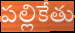
పల్లికేతు